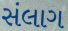
સંલાગ